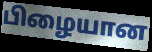
பிழையான